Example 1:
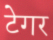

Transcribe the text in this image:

टेगर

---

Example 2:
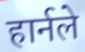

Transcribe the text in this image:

हार्नले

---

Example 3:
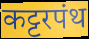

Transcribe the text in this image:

कट्टरपंथ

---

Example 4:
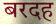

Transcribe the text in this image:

बरदह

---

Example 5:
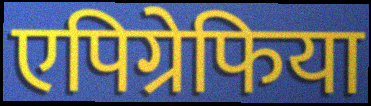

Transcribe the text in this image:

एपिग्रेफिया